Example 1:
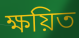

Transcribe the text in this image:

ক্ষয়িত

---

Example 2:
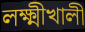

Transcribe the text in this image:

লক্ষ্মীখালী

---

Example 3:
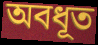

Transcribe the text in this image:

অবধূত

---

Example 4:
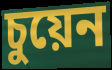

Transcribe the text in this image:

চুয়েন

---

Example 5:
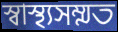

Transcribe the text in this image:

স্বাস্থ্যসম্মত